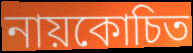
নায়কোচিত